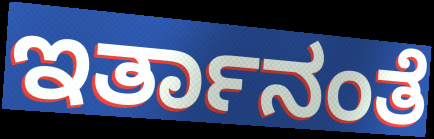
ಇರ್ತಾನಂತೆ